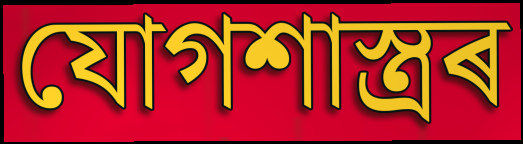
যোগশাস্ত্ৰৰ